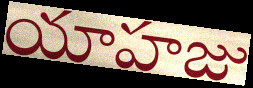
యాహజు